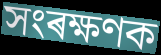
সংৰক্ষণক